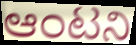
ಆಂಟನಿ